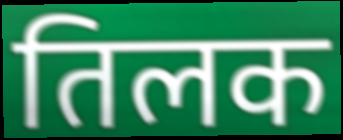
तिलक